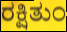
ರಕ್ಷಿತುಂ